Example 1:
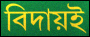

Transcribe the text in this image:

বিদায়ই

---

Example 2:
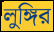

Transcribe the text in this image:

লুঙ্গির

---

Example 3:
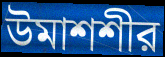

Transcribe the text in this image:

উমাশশীর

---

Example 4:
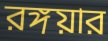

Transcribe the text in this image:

রঙ্গয়ার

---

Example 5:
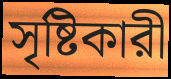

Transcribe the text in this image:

সৃষ্টিকারী